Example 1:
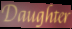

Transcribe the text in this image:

Daughter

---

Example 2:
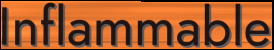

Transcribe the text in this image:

Inflammable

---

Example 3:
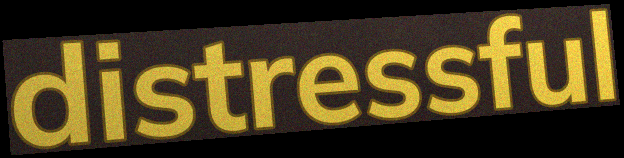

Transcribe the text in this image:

distressful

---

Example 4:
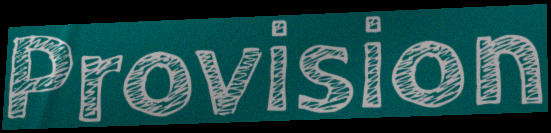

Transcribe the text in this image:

Provision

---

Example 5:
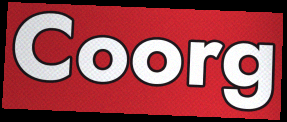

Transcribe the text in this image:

Coorg